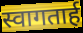
स्वागतार्ह